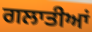
ਗਲਾਤੀਆਂ